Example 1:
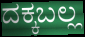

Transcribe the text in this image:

ದಕ್ಕಬಲ್ಲ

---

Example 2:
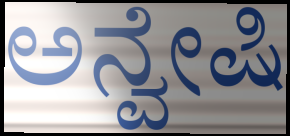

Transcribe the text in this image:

ಅನ್ವೇಷಿ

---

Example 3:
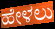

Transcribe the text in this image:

ಹೇಳಲು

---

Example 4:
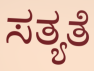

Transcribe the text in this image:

ಸತ್ಯತೆ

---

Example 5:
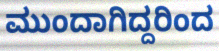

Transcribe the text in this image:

ಮುಂದಾಗಿದ್ದರಿಂದ